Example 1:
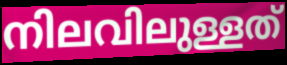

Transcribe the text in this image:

നിലവിലുള്ളത്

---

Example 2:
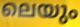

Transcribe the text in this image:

ലെയും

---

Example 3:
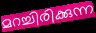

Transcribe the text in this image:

മറച്ചിരിക്കുന്ന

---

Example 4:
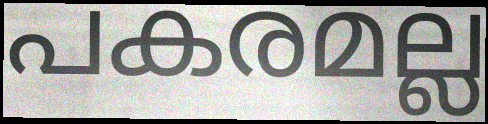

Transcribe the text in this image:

പകരമല്ല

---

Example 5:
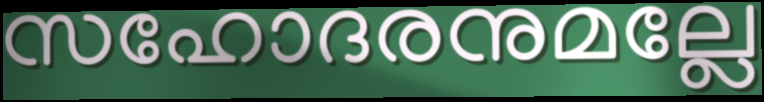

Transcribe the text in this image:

സഹോദരനുമല്ലേ